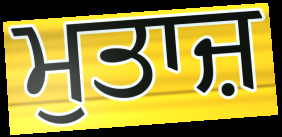
ਮੁਤਾਜ਼